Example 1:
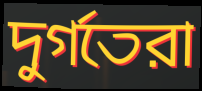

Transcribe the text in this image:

দুর্গতেরা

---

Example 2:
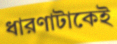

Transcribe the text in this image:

ধারণাটাকেই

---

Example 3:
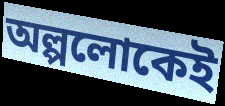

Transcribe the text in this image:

অল্পলোকেই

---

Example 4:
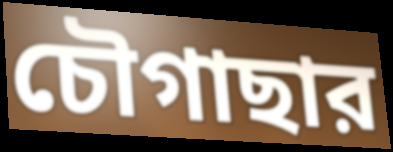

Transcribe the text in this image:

চৌগাছার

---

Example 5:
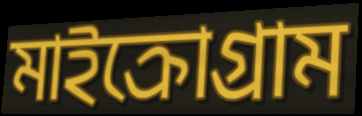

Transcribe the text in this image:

মাইক্রোগ্রাম